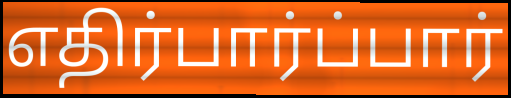
எதிர்பார்ப்பார்